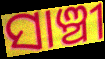
ସାଞ୍ଚୀ